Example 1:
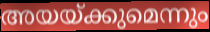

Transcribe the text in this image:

അയയ്ക്കുമെന്നും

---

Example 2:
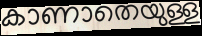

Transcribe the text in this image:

കാണാതെയുള്ള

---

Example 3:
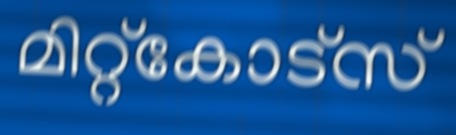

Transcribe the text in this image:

മിറ്റ്കോട്സ്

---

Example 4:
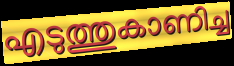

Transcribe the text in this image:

എടുത്തുകാണിച്ച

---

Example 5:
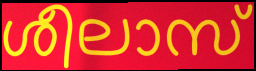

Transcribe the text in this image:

ശീലാസ്